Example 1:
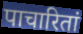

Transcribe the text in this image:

पाचारितां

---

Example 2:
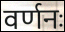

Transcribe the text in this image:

वर्णनः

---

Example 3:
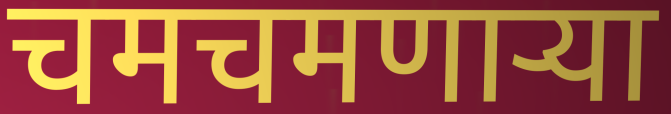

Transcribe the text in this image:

चमचमणाऱ्या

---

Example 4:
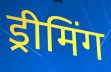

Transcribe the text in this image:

ड्रीमिंग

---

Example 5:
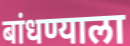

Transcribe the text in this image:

बांधण्याला